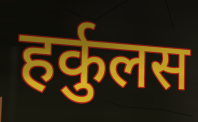
हर्कुलस